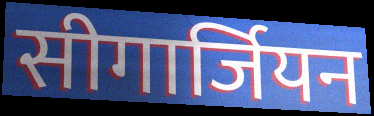
सीगार्जियन